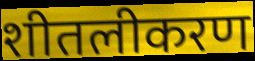
शीतलीकरण